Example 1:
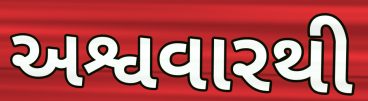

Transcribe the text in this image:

અશ્વવારથી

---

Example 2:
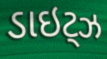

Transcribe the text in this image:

ડાઇટ્ઝ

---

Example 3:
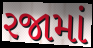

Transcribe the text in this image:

રજામાં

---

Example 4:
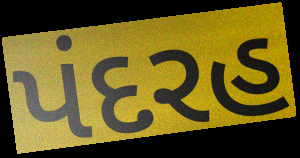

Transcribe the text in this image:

પંદરહ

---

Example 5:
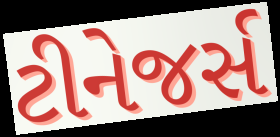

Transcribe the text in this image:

ટીનેજર્સ